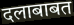
दलाबाबत